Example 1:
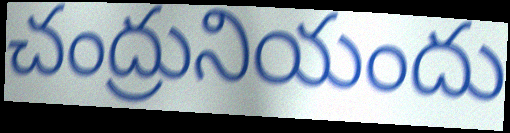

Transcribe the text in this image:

చంద్రునియందు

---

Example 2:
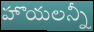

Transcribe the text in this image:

హొయలన్నీ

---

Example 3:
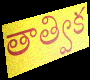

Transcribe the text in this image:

తాత్విక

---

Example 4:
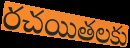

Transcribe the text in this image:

రచయితలకు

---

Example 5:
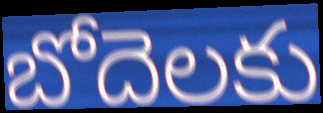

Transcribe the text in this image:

బోదెలకు